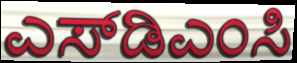
ಎಸ್‌ಡಿಎಂಸಿ